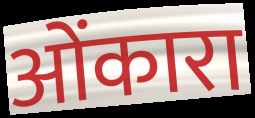
ओंकारा